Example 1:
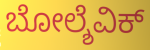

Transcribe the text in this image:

ಬೋಲ್ಶೆವಿಕ್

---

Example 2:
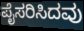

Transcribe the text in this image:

ಪೈಸರಿಸಿದವು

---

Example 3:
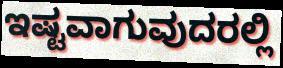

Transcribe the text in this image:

ಇಷ್ಟವಾಗುವುದರಲ್ಲಿ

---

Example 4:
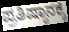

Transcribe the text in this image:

ಪ್ರತಿಷ್ಠಾನಕ್ಕೆ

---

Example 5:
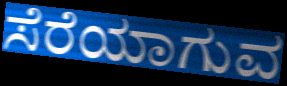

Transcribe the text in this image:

ಸೆರೆಯಾಗುವ